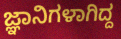
ಜ್ಞಾನಿಗಳಾಗಿದ್ದ